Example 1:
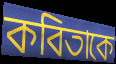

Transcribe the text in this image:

কবিতাকে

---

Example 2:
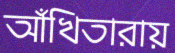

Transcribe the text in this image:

আঁখিতারায়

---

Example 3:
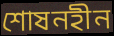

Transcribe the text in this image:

শোষনহীন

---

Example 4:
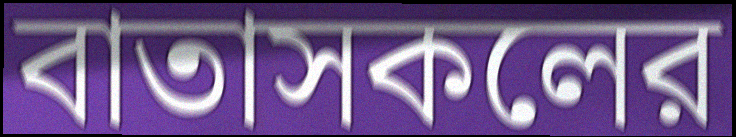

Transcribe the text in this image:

বাতাসকলের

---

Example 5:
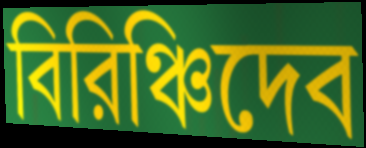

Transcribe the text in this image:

বিরিঞ্চিদেব